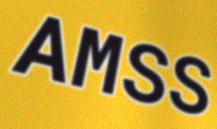
AMSS